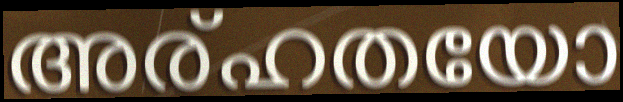
അര്ഹതയോ